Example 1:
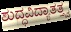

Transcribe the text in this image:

ಶುದ್ಧವಿದ್ಯಾತತ್ತ್ವ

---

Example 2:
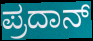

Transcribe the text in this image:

ಪ್ರದಾನ್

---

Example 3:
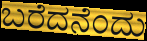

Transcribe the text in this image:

ಬರೆದನೆಂದು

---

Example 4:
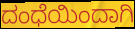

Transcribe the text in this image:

ದಂಧೆಯಿಂದಾಗಿ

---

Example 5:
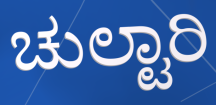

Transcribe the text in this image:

ಚುಲ್ಟಾರಿ